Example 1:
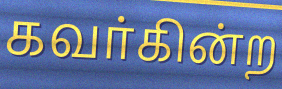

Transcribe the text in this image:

கவர்கின்ற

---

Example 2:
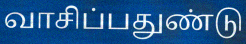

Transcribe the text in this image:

வாசிப்பதுண்டு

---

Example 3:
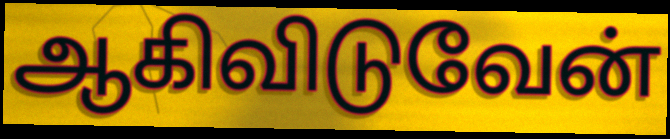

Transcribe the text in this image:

ஆகிவிடுவேன்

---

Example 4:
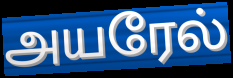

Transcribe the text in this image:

அயரேல்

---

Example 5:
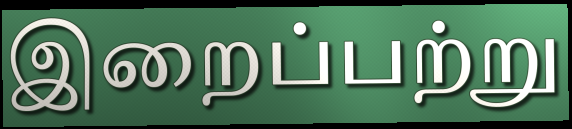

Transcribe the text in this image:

இறைப்பற்று